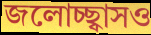
জলোচ্ছ্বাসও